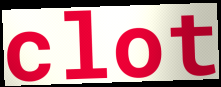
clot